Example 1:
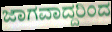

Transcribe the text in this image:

ಜಾಗವಾದ್ದರಿಂದ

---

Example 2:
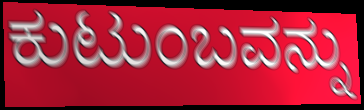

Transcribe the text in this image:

ಕುಟುಂಬವನ್ನು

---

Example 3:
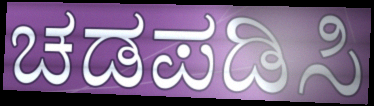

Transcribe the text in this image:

ಚಡಪಡಿಸಿ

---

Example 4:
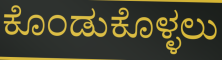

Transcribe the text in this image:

ಕೊಂಡುಕೊಳ್ಳಲು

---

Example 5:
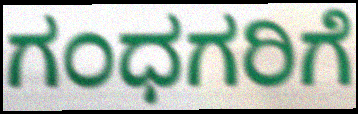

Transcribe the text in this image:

ಗಂಧಗರಿಗೆ